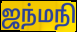
ஜந்மநி